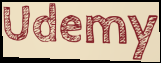
Udemy